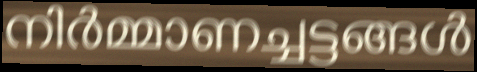
നിർമ്മാണച്ചട്ടങ്ങൾ